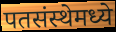
पतसंस्थेमध्ये